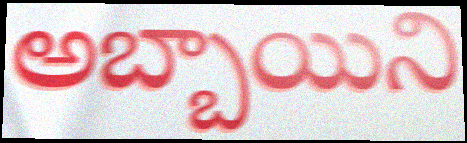
అబ్బాయిని